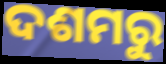
ଦଶମରୁ